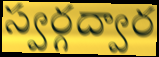
స్వర్గద్వార